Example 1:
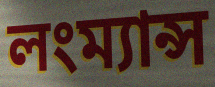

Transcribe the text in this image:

লংম্যান্স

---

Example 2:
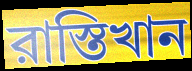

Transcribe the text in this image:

রাস্তিখান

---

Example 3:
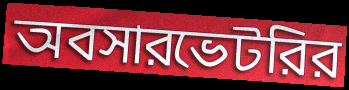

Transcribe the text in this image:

অবসারভেটরির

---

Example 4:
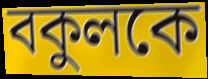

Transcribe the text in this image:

বকুলকে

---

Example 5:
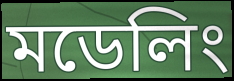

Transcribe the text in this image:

মডেলিং